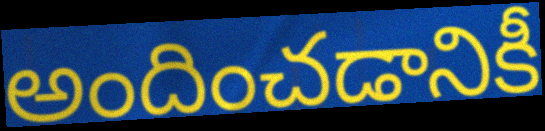
అందించడానికీ